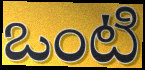
ఒంటి